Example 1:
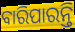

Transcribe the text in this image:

ବାରିପାରନ୍ତି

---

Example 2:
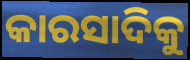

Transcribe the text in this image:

କାରସାଦିକୁ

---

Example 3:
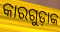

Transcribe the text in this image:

କାରଗୁଡ଼ାକ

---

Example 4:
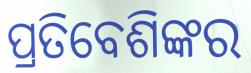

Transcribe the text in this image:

ପ୍ରତିବେଶିଙ୍କର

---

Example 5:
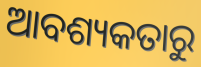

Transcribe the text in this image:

ଆବଶ୍ୟକତାରୁ